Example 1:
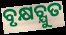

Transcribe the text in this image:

ବୃକ୍ଷଚ୍ଯୁତ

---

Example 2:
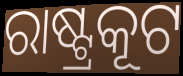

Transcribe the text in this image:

ରାଷ୍ଟ୍ରକୂଟ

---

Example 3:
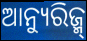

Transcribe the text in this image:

ଆନ୍ୟୁରିଜ୍ମ୍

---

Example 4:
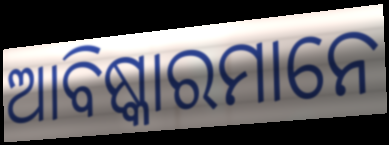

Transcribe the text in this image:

ଆବିଷ୍କାରମାନେ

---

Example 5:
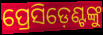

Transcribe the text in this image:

ପ୍ରେସିଡ଼େଣ୍ଟଙ୍କୁ